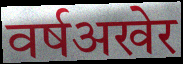
वर्षअखेर